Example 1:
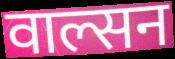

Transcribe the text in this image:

वाल्सन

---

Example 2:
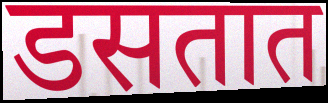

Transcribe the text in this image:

डसतात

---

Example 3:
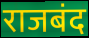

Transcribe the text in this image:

राजबंद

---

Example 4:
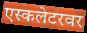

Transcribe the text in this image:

एस्कलेटरवर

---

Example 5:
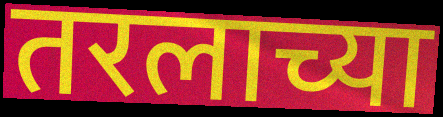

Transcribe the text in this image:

तरलाच्या